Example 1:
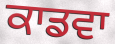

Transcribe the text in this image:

ਕਾਡਵਾ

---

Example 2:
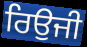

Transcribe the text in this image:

ਰਿਉਜੀ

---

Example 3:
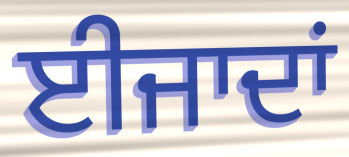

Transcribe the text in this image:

ਈਜਾਦਾਂ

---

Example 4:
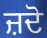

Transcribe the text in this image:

ਜ਼ਦੋ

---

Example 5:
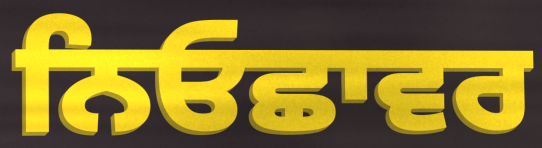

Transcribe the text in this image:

ਨਿਓਛਾਵਰ